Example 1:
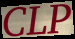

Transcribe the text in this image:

CLP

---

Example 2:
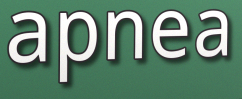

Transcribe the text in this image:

apnea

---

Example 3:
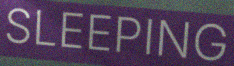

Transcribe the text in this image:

SLEEPING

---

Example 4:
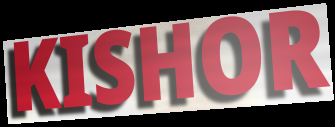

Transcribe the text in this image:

KISHOR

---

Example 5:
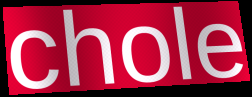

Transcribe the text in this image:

chole